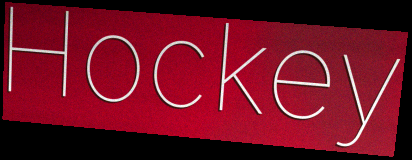
Hockey